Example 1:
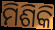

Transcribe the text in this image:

ମିଶିକି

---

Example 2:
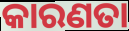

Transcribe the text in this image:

କାରଣତା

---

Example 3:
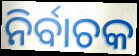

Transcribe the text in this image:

ନିର୍ବାଚକ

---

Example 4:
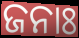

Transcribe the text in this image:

ଜନାଃ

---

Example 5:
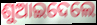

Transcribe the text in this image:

ଶୁଆଇଦେଲେ